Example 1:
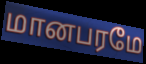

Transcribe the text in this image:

மானபரமே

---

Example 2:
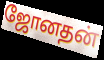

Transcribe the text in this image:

ஜோனதன்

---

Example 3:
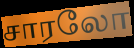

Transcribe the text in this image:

சாரலோ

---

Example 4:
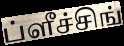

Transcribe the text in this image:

ப்ளீச்சிங்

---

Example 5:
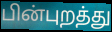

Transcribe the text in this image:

பின்புறத்து